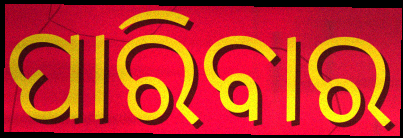
ପାରିବାର